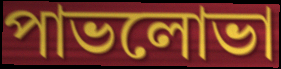
পাভলোভা